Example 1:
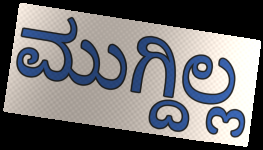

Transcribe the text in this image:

ಮುಗ್ದಿಲ್ಲ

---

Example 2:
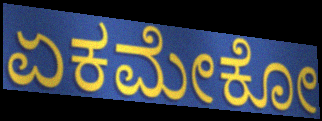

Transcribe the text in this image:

ಏಕಮೇಕೋ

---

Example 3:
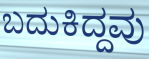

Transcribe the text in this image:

ಬದುಕಿದ್ದವು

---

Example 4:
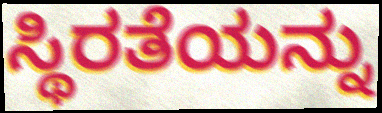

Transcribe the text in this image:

ಸ್ಥಿರತೆಯನ್ನು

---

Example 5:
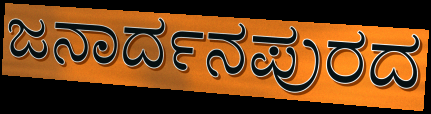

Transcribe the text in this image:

ಜನಾರ್ದನಪುರದ